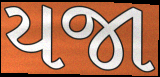
યજા